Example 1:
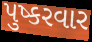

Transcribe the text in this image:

પુષ્કરવાર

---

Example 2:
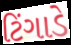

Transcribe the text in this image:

ટિંગાડે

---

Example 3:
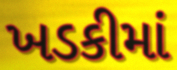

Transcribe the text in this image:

ખડકીમાં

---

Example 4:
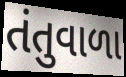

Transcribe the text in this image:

તંતુવાળા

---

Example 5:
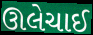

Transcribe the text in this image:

ઊલેચાઈ